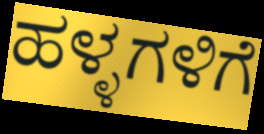
ಹಳ್ಳಗಳಿಗೆ